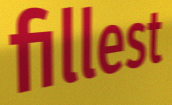
fillest